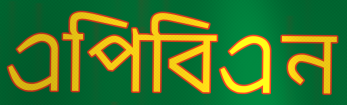
এপিবিএন